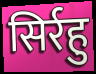
सिर्रहु